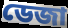
ডেজা